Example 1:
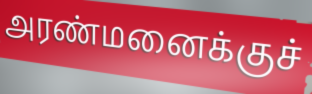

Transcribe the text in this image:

அரண்மனைக்குச்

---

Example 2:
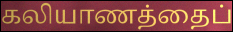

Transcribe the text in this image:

கலியாணத்தைப்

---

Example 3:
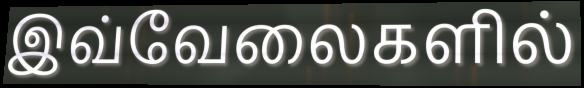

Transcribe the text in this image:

இவ்வேலைகளில்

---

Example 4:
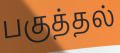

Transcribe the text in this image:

பகுத்தல்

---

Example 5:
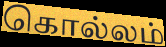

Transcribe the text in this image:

கொல்லம்